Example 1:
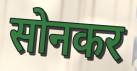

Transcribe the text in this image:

सोनकर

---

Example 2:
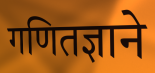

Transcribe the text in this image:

गणितज्ञाने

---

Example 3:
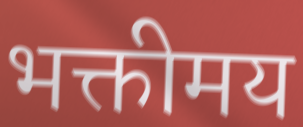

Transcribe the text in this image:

भक्तीमय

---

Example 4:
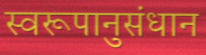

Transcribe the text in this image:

स्वरूपानुसंधान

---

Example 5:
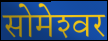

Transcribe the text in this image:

सोमेश्वर